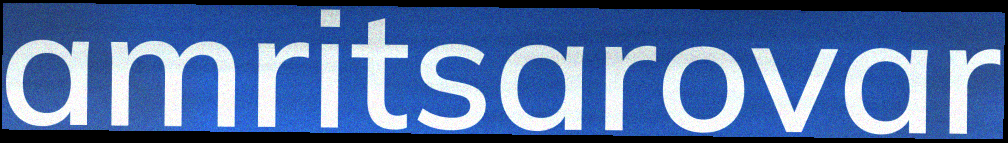
amritsarovar